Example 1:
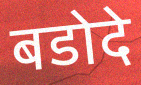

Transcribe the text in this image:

बडोदे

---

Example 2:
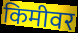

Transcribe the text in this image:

किमीवर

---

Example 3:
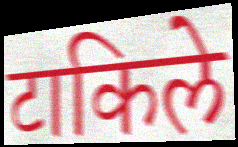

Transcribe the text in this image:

टाकिले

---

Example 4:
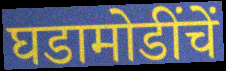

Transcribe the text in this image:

घडामोडींचें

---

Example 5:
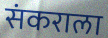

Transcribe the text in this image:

संकराला